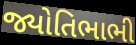
જ્યોતિભાભી